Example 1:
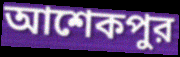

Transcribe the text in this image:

আশেকপুর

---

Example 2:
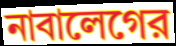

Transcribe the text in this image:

নাবালেগের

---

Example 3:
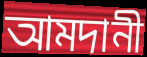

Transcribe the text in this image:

আমদানী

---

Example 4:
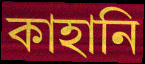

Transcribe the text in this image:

কাহানি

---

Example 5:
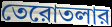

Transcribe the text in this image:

তেরোতলার